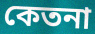
কেতনা